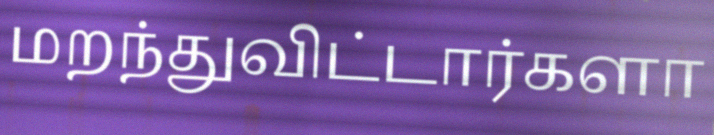
மறந்துவிட்டார்களா